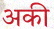
अकी